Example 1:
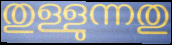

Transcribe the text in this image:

തുള്ളുന്നതു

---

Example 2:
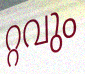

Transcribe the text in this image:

റ്റവും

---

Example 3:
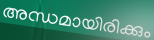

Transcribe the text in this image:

അന്ധമായിരിക്കും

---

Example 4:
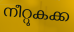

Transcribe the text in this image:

നീറ്റുകക്ക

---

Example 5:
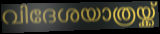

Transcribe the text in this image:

വിദേശയാത്രയ്ക്ക്